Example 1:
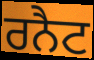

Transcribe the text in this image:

ਰਨੈਟ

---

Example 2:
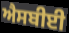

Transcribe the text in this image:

ਐਸਬੀਈ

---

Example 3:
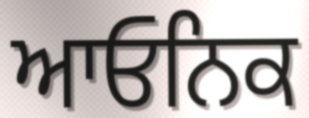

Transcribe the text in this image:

ਆਓਨਿਕ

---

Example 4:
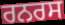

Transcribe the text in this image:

ਰਨਰਸ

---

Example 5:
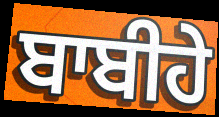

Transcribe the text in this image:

ਬਾਬੀਹੇ